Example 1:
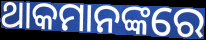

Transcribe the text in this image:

ଥାକମାନଙ୍କରେ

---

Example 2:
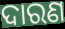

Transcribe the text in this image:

ଦାରଣ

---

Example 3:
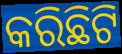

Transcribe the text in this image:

କରିଛିଟି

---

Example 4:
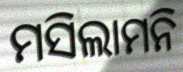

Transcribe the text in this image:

ମସିଲାମନି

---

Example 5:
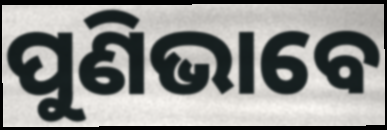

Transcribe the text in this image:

ପୁଣିଭାବେ